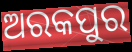
ଅରକପୁର